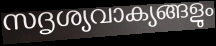
സദൃശ്യവാക്യങ്ങളും